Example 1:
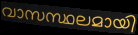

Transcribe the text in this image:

വാസസ്ഥലമായി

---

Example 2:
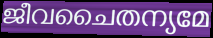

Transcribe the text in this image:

ജീവചൈതന്യമേ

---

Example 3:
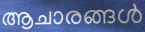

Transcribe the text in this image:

ആചാരങ്ങൾ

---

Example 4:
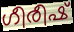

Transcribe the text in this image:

ഗീരീഷ്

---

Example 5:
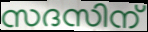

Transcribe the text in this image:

സദസിന്